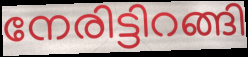
നേരിട്ടിറങ്ങി